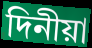
দিনীয়া